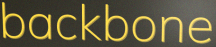
backbone